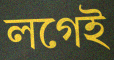
লগেই